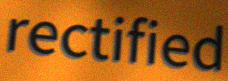
rectified